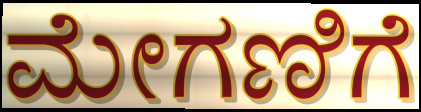
ಮೇಗಣಿಗೆ